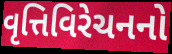
વૃત્તિવિરેચનનો